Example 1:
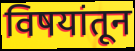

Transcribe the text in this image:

विषयांतून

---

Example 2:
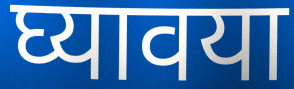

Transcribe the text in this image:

घ्यावया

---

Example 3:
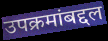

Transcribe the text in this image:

उपक्रमांबद्दल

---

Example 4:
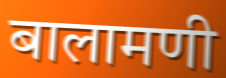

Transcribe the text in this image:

बालामणी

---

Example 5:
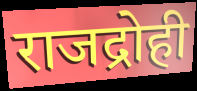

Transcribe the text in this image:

राजद्रोही